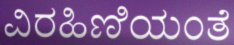
ವಿರಹಿಣಿಯಂತೆ